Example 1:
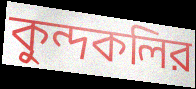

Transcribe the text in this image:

কুন্দকলির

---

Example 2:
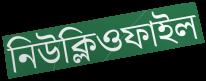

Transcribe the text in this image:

নিউক্লিওফাইল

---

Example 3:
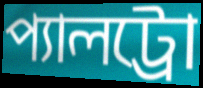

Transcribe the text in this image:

প্যালট্রো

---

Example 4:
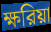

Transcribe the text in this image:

ক্ষরিয়া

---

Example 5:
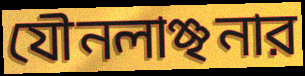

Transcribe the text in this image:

যৌনলাঞ্ছনার